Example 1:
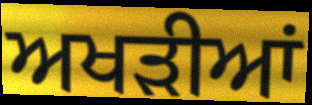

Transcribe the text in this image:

ਅਖੜੀਆਂ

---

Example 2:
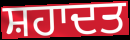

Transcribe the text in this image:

ਸ਼ਹਾਦਤ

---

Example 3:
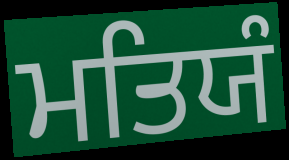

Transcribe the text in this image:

ਮਤਿਯੰ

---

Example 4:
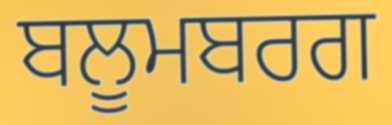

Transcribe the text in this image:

ਬਲੂਮਬਰਗ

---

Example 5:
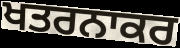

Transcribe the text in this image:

ਖਤਰਨਾਕਰ